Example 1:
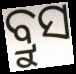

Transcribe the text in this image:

ବ୍ରୁସ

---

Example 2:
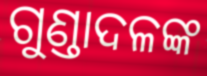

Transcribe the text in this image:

ଗୁଣ୍ଡାଦଳଙ୍କ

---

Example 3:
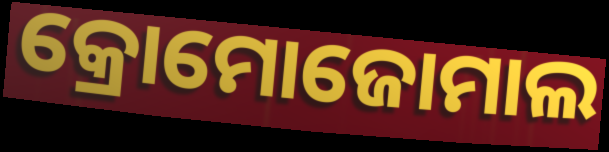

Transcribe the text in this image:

କ୍ରୋମୋଜୋମାଲ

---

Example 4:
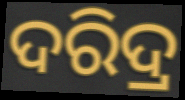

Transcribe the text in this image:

ଦରିଦ୍ର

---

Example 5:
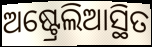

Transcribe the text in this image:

ଅଷ୍ଟ୍ରେଲିଆସ୍ଥିତ